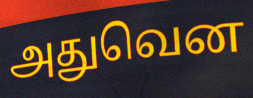
அதுவென